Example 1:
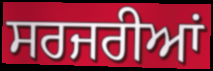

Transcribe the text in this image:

ਸਰਜਰੀਆਂ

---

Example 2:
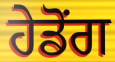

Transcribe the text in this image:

ਹੇਡੋਂਗ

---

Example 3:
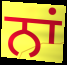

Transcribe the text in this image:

ਨਾਂ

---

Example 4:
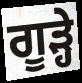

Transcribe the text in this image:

ਗੂੜ੍ਹੇ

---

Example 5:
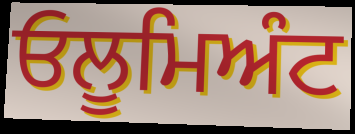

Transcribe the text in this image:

ਓਲੂਮਿਅੰਟ